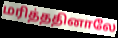
மரித்ததினாலே